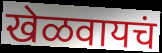
खेळवायचं